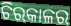
ଚିରକାଳର